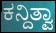
ಕನ್ದಿತ್ವಾ